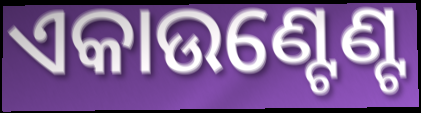
ଏକାଉଣ୍ଟେଣ୍ଟ